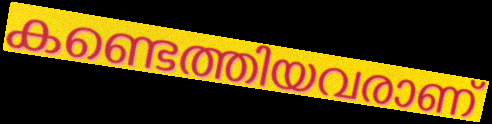
കണ്ടെത്തിയവരാണ്